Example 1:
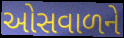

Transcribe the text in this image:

ઓસવાળને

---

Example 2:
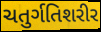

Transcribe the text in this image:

ચતુર્ગતિશરીર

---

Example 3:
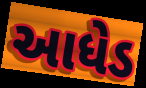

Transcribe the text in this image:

આધેડ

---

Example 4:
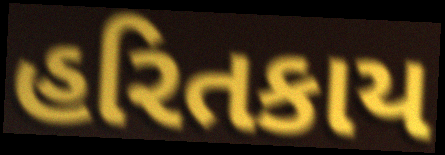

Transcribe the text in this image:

હરિતકાય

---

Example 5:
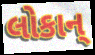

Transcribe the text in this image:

લોકાન્